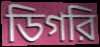
ডিগরি